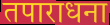
तपाराधना